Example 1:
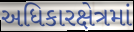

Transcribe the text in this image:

અધિકારક્ષેત્રમાં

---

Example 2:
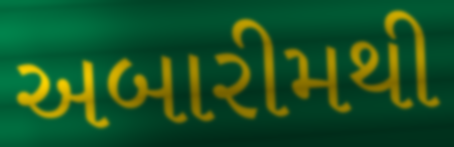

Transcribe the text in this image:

અબારીમથી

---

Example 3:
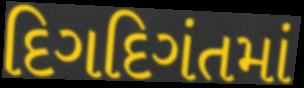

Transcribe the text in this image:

દિગદિગંતમાં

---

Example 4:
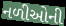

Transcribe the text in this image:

નળીઓની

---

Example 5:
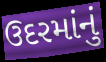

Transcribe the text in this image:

ઉદરમાંનું